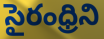
సైరంధ్రిని